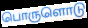
பொருளொடு